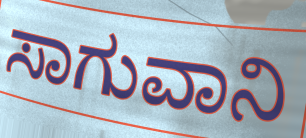
ಸಾಗುವಾನಿ